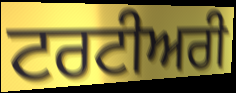
ਟਰਟੀਅਰੀ